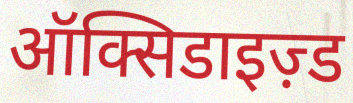
ऑक्सिडाइज़्ड